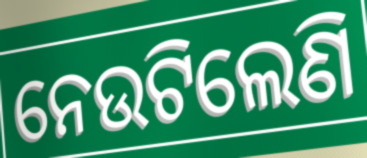
ନେଉଟିଲେଣି